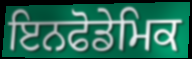
ਇਨਫੋਡੇਮਿਕ